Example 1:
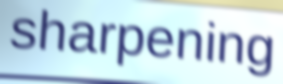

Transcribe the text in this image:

sharpening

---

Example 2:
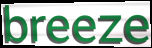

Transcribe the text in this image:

breeze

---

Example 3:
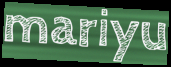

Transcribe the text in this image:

mariyu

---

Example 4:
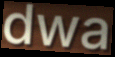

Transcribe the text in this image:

dwa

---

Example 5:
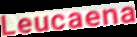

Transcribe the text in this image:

Leucaena